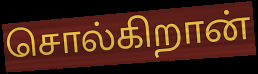
சொல்கிறான்